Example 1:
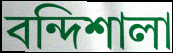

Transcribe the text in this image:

বন্দিশালা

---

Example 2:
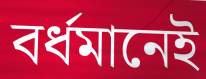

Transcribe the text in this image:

বর্ধমানেই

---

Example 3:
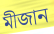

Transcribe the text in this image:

মীজান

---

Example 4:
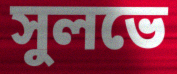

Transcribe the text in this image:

সুলভে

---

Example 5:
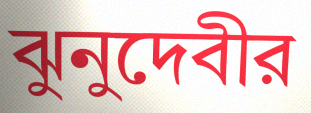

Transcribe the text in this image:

ঝুনুদেবীর